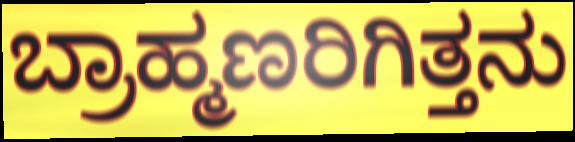
ಬ್ರಾಹ್ಮಣರಿಗಿತ್ತನು